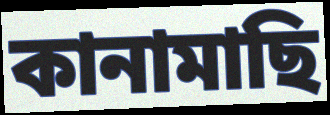
কানামাছি